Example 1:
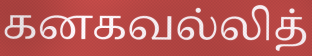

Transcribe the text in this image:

கனகவல்லித்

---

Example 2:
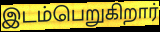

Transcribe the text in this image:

இடம்பெறுகிறார்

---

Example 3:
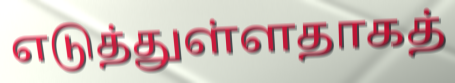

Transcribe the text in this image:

எடுத்துள்ளதாகத்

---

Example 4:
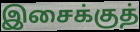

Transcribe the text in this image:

இசைக்குத்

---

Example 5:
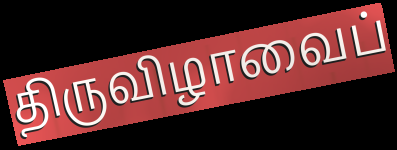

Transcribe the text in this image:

திருவிழாவைப்